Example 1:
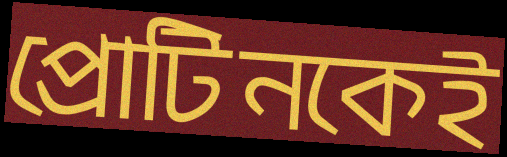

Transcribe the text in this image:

প্রোটিনকেই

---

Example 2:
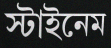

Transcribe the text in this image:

স্টাইনেম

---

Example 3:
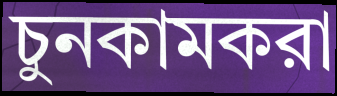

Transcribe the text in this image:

চুনকামকরা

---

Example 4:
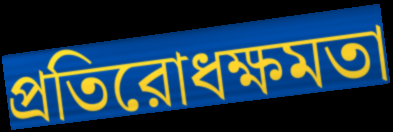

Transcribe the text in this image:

প্রতিরোধক্ষমতা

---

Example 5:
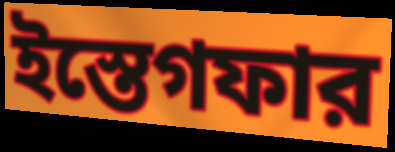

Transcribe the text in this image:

ইস্তেগফার